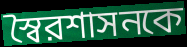
স্বৈরশাসনকে